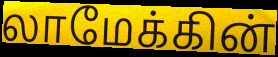
லாமேக்கின்